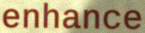
enhance